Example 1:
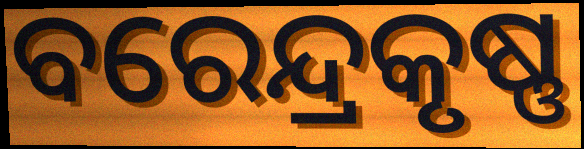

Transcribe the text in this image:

ବରେନ୍ଦ୍ରକୃଷ୍ଣ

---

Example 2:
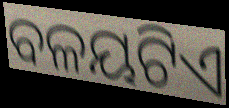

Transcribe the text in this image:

ବଳୟଟିଏ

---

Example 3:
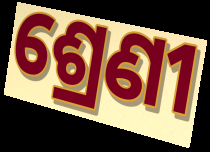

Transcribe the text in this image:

ଶ୍ରେଣୀ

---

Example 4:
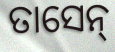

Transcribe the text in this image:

ତାସେନ୍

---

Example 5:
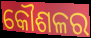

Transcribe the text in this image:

କୌଶଳର